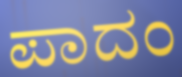
ಪಾದಂ